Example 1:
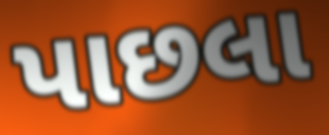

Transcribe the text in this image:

પાછલા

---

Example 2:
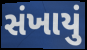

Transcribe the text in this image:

સંખાયું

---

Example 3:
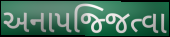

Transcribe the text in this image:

અનાપજ્જિત્વા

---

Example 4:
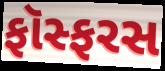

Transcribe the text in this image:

ફૉસ્ફરસ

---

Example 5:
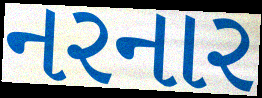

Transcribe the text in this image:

નરનાર